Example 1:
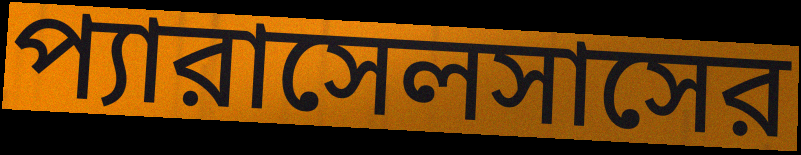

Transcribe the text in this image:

প্যারাসেলসাসের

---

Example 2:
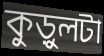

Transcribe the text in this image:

কুড়ুলটা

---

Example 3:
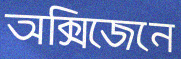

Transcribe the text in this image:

অক্সিজেনে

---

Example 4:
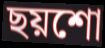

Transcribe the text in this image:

ছয়শো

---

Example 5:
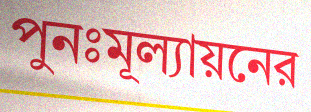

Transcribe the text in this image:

পুনঃমূল্যায়নের